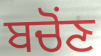
ਬਚੋਂਣ